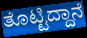
ತೊಟ್ಟಿದ್ದಾನೆ